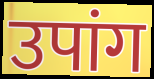
उपांग